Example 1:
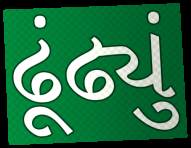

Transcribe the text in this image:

ઢૂંઢ્યું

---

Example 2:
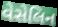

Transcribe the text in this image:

વેસેલિન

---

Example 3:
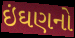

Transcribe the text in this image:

ઇંઘણનો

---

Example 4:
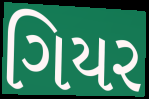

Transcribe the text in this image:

ગિયર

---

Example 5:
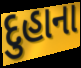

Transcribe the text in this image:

દુહાના